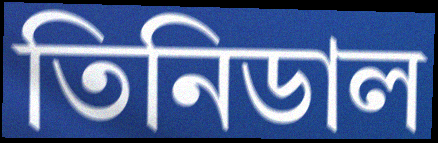
তিনিডাল